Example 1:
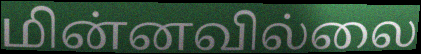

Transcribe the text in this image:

மின்னவில்லை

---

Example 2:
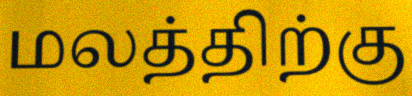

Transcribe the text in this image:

மலத்திற்கு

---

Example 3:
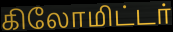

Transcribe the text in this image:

கிலோமிட்டர்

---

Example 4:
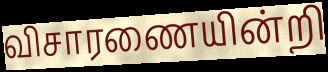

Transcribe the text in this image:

விசாரணையின்றி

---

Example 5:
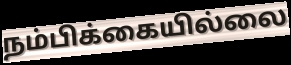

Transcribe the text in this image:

நம்பிக்கையில்லை